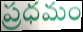
ప్రధమం